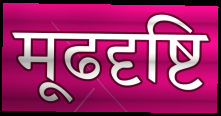
मूढदृष्टि